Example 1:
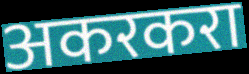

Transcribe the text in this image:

अकरकरा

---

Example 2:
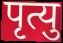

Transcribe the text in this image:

पृत्यु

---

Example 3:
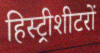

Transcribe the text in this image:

हिस्ट्रीशीटरों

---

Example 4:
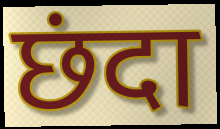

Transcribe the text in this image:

छंदा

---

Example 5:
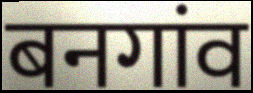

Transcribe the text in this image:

बनगांव